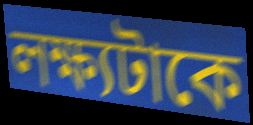
লক্ষ্যটাকে